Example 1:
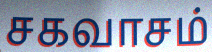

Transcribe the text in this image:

சகவாசம்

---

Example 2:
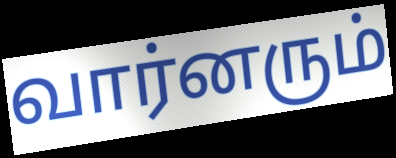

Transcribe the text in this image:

வார்னரும்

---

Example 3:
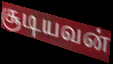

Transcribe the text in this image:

சூடியவன்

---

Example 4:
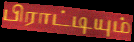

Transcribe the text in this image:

பிராட்டியும்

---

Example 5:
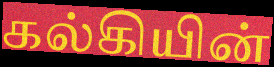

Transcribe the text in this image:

கல்கியின்